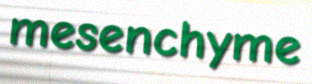
mesenchyme